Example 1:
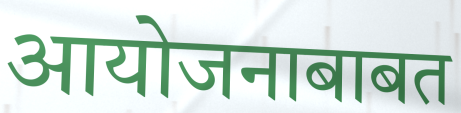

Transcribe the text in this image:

आयोजनाबाबत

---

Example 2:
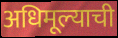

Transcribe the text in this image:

अधिमूल्याची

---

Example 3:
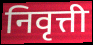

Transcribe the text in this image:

निवृत्ती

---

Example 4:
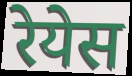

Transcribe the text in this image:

रेयेस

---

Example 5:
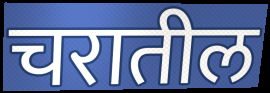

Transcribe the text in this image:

चरातील